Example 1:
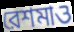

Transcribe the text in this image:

রেশমাও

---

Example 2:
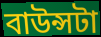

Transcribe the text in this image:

বাউন্সটা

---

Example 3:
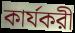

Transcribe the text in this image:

কার্যকরী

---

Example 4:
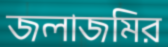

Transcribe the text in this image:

জলাজমির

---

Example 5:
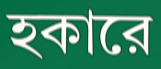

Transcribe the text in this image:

হকারে